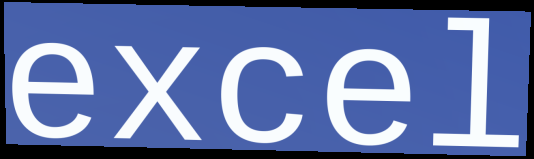
excel